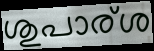
ശുപാര്ശ